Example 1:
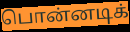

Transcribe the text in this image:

பொன்னடிக்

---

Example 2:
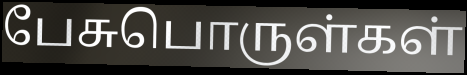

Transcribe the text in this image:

பேசுபொருள்கள்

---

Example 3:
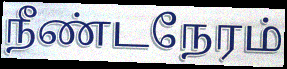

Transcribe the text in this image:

நீண்டநேரம்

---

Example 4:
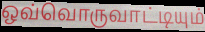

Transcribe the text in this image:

ஒவ்வொருவாட்டியும்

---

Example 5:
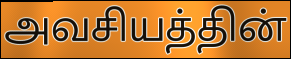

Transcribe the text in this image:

அவசியத்தின்